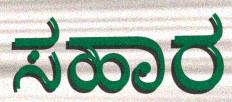
ಸಹಾರ